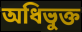
অধিভুক্ত